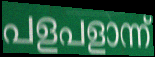
പളപളാന്ന്